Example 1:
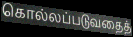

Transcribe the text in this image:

கொல்லப்படுவதைத்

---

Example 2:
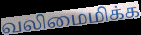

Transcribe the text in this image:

வலிமைமிக்க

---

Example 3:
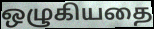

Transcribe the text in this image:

ஒழுகியதை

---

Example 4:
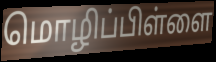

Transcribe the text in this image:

மொழிப்பிள்ளை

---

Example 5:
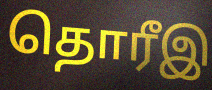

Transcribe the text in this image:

தொரீஇ